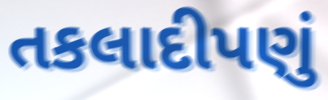
તકલાદીપણું